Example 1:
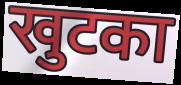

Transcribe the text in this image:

खुटका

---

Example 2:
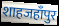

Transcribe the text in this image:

शाहजहाँपुर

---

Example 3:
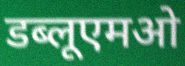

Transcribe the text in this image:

डब्लूएमओ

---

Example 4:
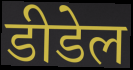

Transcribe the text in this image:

डीडेल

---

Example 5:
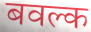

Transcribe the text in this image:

बवल्क